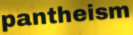
pantheism